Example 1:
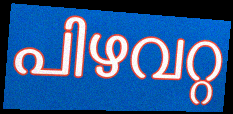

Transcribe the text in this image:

പിഴവറ്റ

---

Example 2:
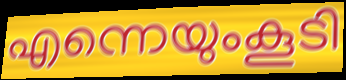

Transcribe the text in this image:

എന്നെയുംകൂടി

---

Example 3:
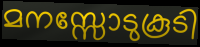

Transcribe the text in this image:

മനസ്സോടുകൂടി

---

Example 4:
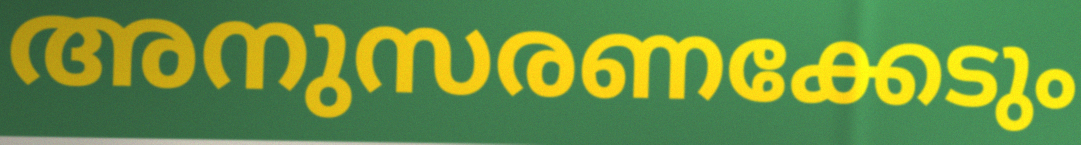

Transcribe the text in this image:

അനുസരണക്കേടും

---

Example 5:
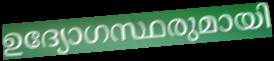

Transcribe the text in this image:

ഉദ്യോഗസ്ഥരുമായി